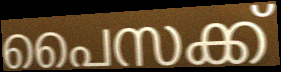
പൈസക്ക്